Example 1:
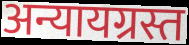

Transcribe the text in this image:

अन्यायग्रस्त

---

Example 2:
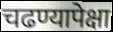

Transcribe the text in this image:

चढण्यापेक्षा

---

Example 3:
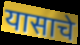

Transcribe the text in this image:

यासाचे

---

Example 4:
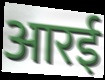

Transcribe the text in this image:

आरई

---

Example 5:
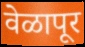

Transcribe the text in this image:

वेळापूर